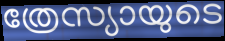
ത്രേസ്യായുടെ